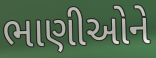
ભાણીઓને